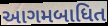
આગમબાધિત